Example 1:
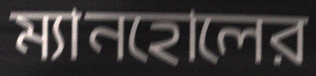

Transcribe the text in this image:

ম্যানহোলের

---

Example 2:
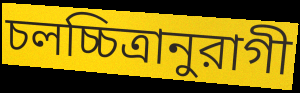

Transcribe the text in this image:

চলচ্চিত্রানুরাগী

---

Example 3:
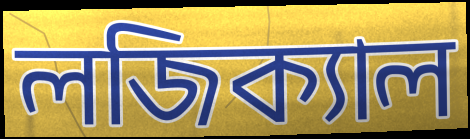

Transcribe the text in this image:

লজিক্যাল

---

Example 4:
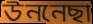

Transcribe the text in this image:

উননেছা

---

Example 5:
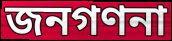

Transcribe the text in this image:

জনগণনা